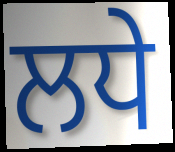
ਲਧੇ